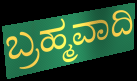
ಬ್ರಹ್ಮವಾದಿ